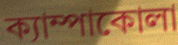
ক্যাম্পাকোলা